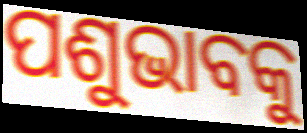
ପଶୁଭାବକୁ